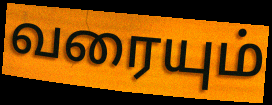
வரையும்